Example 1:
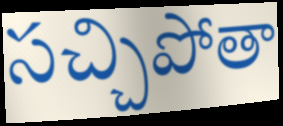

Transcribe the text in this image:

సచ్చిపోతా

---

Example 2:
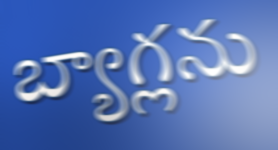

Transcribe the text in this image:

బ్యాగ్లను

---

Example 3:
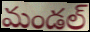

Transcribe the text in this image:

మండల్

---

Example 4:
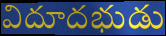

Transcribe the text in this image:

విదూదభుడు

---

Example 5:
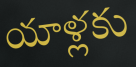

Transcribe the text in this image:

యాళ్లకు